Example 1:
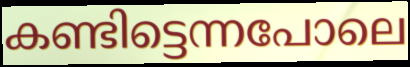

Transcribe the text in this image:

കണ്ടിട്ടെന്നപോലെ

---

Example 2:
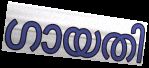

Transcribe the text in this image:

ഗായതി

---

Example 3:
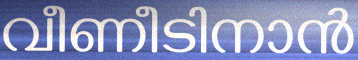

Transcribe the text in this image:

വീണീടിനാൻ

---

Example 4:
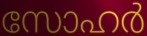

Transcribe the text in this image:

സോഹർ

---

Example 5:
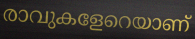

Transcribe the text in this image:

രാവുകളേറെയാണ്